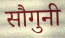
सौगुनी